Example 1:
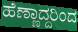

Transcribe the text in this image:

ಹೆಣ್ಣಾದ್ದರಿಂದ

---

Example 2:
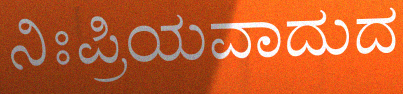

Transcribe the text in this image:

ನಿಃಪ್ರಿಯವಾದುದ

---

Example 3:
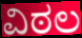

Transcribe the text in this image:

ವಿಠಲ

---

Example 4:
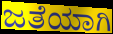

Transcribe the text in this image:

ಜತೆಯಾಗಿ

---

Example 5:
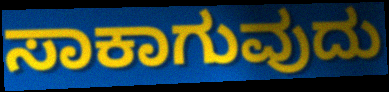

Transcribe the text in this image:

ಸಾಕಾಗುವುದು